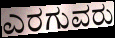
ಎರಗುವರು